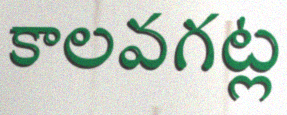
కాలవగట్ల